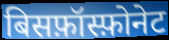
बिसफ़ॉस्फ़ोनेट